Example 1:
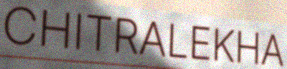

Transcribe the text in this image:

CHITRALEKHA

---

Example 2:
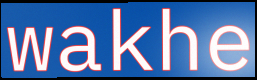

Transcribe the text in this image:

wakhe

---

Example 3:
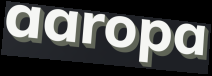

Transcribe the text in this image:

aaropa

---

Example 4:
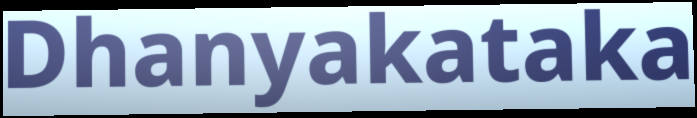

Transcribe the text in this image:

Dhanyakataka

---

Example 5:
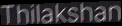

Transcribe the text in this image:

Thilakshan